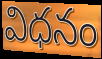
విధనం